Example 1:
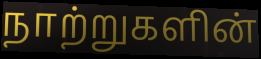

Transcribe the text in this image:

நாற்றுகளின்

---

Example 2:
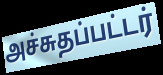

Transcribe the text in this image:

அச்சுதப்பட்டர்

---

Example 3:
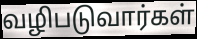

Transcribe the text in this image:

வழிபடுவார்கள்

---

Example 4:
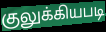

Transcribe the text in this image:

குலுக்கியபடி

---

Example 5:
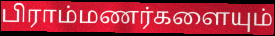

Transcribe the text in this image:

பிராம்மணர்களையும்